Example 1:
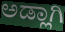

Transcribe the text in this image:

ಅಡ್ಲಾಗಿ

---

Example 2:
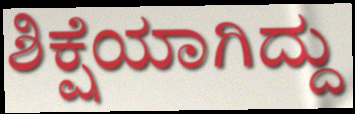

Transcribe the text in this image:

ಶಿಕ್ಷೆಯಾಗಿದ್ದು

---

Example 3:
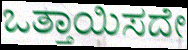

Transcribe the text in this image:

ಒತ್ತಾಯಿಸದೇ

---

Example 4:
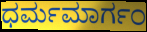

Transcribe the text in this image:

ಧರ್ಮಮಾರ್ಗಂ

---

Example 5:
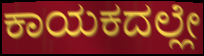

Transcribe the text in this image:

ಕಾಯಕದಲ್ಲೇ